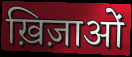
ख़िज़ाओं